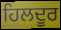
ਹਿਲਦੂਰ